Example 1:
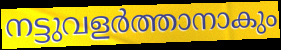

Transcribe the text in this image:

നട്ടുവളർത്താനാകും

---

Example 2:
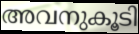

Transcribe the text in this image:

അവനുകൂടി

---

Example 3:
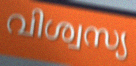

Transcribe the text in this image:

വിശ്വസ്യ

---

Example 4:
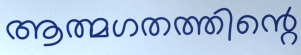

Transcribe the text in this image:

ആത്മഗതത്തിന്റെ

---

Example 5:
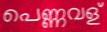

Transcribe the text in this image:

പെണ്ണവള്